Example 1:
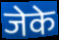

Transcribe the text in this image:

जेके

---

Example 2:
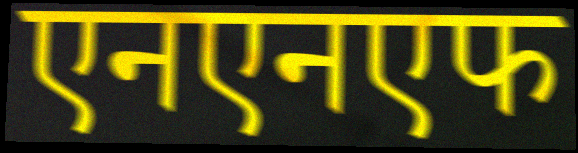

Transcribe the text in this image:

एनएनएफ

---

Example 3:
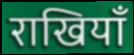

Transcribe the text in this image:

राखियाँ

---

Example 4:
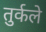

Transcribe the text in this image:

तुर्कले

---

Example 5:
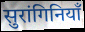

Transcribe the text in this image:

सुरांगिनियाँ